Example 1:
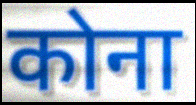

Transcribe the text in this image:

कोना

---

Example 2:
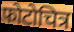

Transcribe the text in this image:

फोटोचित्र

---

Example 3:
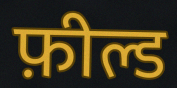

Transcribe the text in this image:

फ़ील्ड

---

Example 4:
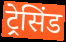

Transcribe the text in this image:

ट्रेसिंड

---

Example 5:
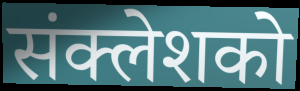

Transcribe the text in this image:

संक्लेशको